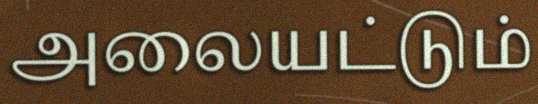
அலையட்டும்